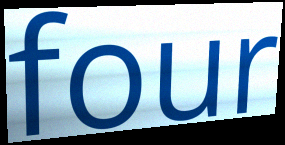
four